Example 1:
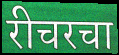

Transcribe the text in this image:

रीचरचा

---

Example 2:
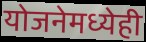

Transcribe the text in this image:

योजनेमध्येही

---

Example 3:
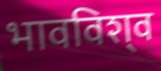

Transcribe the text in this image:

भावविश्व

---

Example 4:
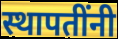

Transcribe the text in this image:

स्थापतींनी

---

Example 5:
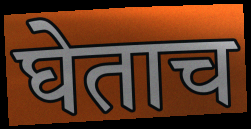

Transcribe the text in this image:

घेताच